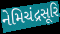
નેમિચંદ્રસૂરિ